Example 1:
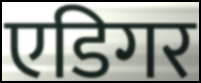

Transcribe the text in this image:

एडिगर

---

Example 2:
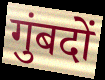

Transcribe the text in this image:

गुंबदों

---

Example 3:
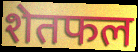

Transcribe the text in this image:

शेतफल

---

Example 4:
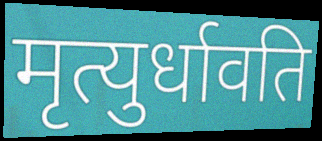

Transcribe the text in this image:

मृत्युर्धावति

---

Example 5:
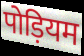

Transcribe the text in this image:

पोड़ियम